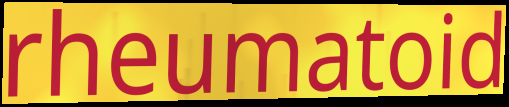
rheumatoid